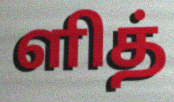
ளித்